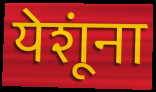
येशूंना